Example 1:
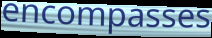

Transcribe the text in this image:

encompasses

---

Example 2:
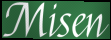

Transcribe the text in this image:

Misen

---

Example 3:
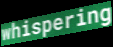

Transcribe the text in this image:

whispering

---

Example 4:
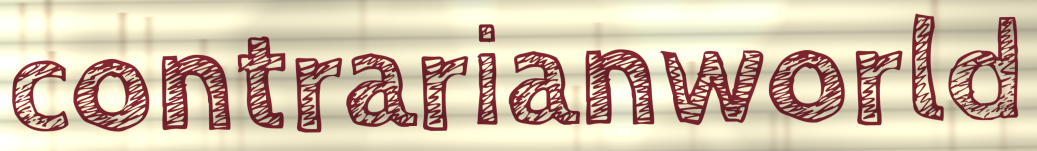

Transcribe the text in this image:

contrarianworld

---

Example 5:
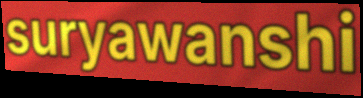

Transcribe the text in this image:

suryawanshi